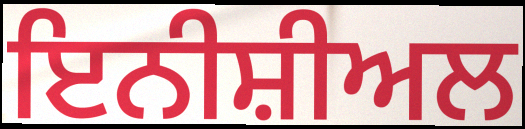
ਇਨੀਸ਼ੀਅਲ